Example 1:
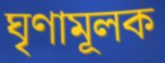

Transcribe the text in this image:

ঘৃণামূলক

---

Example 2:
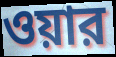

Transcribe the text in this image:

ওয়ার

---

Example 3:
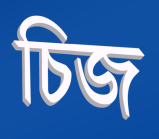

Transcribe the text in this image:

চিজ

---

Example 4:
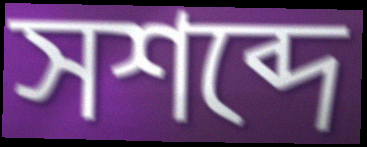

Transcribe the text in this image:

সশব্দে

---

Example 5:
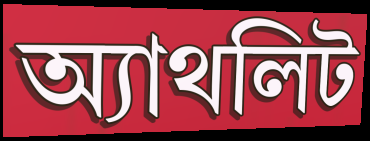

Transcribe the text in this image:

অ্যাথলিট